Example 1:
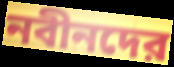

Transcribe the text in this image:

নবীনদের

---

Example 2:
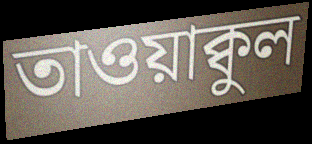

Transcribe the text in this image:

তাওয়াক্বুল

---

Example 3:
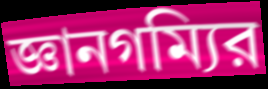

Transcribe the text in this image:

জ্ঞানগম্যির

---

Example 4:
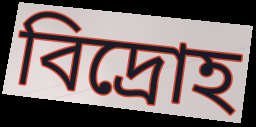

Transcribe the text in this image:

বিদ্রোহ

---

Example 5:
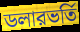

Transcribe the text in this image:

ডলারভর্তি